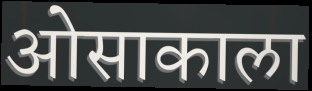
ओसाकाला